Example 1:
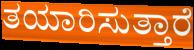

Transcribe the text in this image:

ತಯಾರಿಸುತ್ತಾರೆ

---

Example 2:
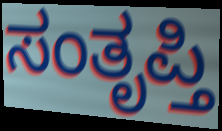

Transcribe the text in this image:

ಸಂತೃಪ್ತಿ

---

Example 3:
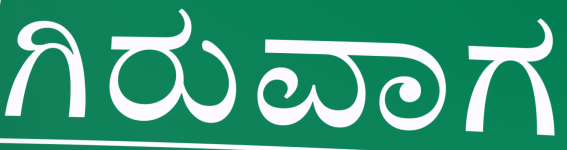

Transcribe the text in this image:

ಗಿರುವಾಗ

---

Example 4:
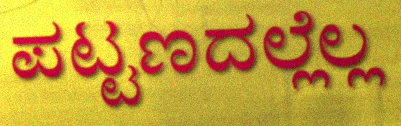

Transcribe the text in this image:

ಪಟ್ಟಣದಲ್ಲೆಲ್ಲ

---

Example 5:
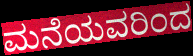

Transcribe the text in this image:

ಮನೆಯವರಿಂದ